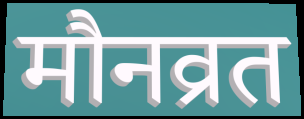
मौनव्रत